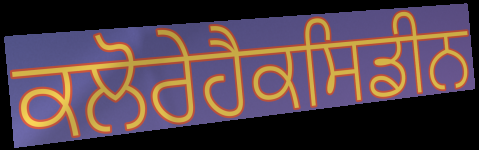
ਕਲੋਰੇਹੈਕਸਿਡੀਨ